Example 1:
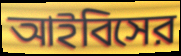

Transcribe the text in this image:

আইবিসের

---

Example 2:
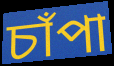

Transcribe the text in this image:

চাঁপা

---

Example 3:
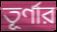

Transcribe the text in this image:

তূর্ণার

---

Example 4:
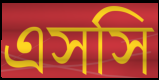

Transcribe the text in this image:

এসসি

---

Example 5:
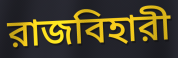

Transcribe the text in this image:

রাজবিহারী